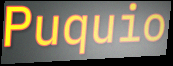
Puquio